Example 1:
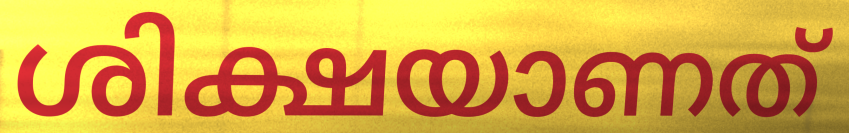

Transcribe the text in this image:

ശിക്ഷയാണത്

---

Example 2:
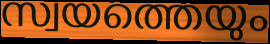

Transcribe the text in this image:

സ്വയത്തെയും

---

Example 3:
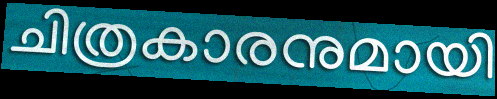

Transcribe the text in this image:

ചിത്രകാരനുമായി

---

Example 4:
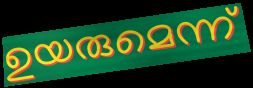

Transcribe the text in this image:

ഉയരുമെന്ന്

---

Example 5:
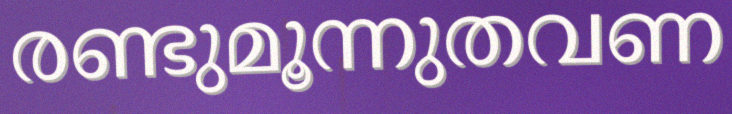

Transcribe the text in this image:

രണ്ടുമൂന്നുതവണ